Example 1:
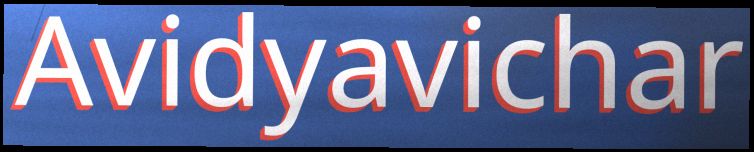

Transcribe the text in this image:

Avidyavichar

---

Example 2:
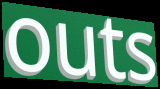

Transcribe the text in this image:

outs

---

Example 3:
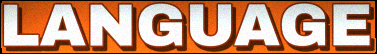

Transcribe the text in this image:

LANGUAGE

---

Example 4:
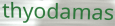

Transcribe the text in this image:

thyodamas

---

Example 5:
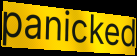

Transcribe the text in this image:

panicked